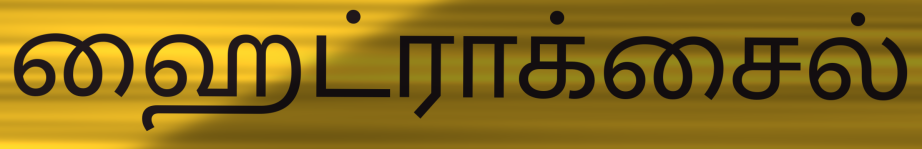
ஹைட்ராக்சைல்